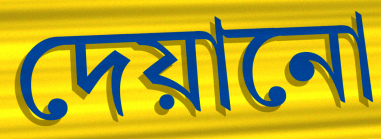
দেয়ানো